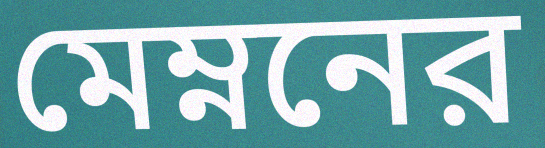
মেম্ননের